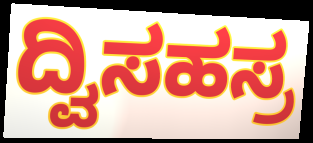
ದ್ವಿಸಹಸ್ರ